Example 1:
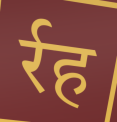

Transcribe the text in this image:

र्रह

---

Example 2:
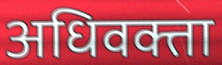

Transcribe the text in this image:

अधिवक्ता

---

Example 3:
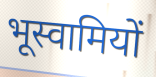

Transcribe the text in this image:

भूस्वामियों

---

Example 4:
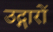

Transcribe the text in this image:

उद्गारों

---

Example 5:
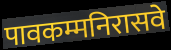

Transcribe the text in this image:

पावकम्मनिरासवे